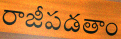
రాజీపడతాం